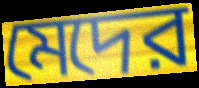
মেদের